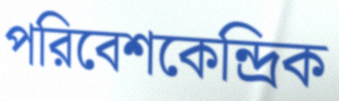
পরিবেশকেন্দ্রিক